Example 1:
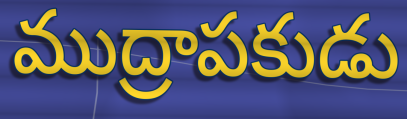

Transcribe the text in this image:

ముద్రాపకుడు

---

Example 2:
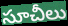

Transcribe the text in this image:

సూచీలు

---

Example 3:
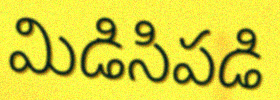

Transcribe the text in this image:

మిడిసిపడి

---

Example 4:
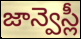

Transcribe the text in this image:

జాన్వెస్లీ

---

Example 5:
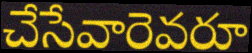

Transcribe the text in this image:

చేసేవారెవరూ